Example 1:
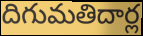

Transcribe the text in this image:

దిగుమతిదార్ల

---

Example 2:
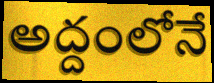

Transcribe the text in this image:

అద్దంలోనే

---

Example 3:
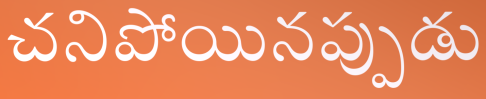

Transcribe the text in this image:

చనిపోయినప్పుడు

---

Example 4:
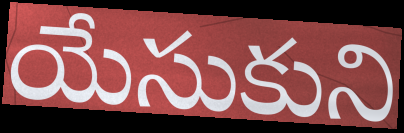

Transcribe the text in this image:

యేసుకుని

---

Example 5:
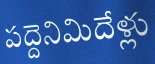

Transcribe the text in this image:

పద్దెనిమిదేళ్లు